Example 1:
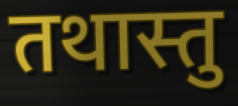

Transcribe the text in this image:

तथास्तु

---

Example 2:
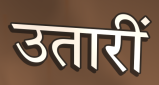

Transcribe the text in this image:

उतारीं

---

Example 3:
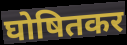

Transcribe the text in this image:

घोषितकर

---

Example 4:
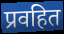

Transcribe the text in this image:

प्रवहित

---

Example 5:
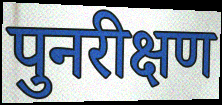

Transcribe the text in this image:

पुनरीक्षण